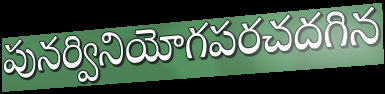
పునర్వినియోగపరచదగిన